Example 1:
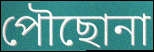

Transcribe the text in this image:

পৌছোনা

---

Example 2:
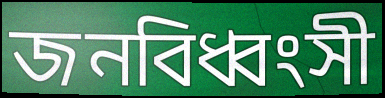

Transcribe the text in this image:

জনবিধ্বংসী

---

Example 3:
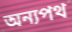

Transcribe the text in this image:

অন্যপথ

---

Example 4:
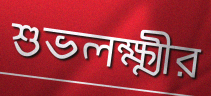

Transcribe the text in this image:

শুভলক্ষ্মীর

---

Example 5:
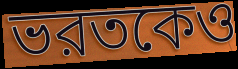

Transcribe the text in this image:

ভরতকেও